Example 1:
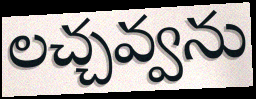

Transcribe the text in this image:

లచ్చవ్వను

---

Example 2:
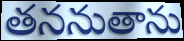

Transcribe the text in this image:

తననుతాను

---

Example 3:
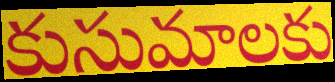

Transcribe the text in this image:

కుసుమాలకు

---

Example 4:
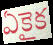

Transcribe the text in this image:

ఏకైక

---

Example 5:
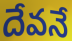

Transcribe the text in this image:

దేవనే